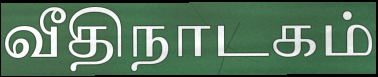
வீதிநாடகம்